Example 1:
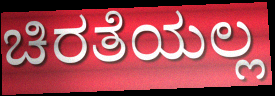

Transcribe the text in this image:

ಚಿರತೆಯಲ್ಲ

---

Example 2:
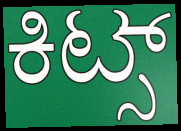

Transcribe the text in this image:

ಕಿಟ್ಸ್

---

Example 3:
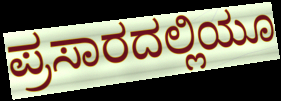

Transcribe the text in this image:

ಪ್ರಸಾರದಲ್ಲಿಯೂ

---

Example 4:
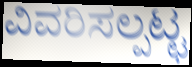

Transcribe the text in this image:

ವಿವರಿಸಲ್ಪಟ್ಟ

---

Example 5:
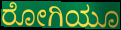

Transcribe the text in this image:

ರೋಗಿಯೂ